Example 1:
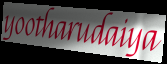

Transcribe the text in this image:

yootharudaiya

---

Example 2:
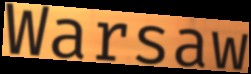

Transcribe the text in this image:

Warsaw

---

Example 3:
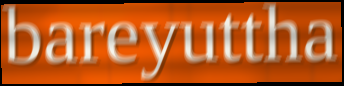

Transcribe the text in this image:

bareyuttha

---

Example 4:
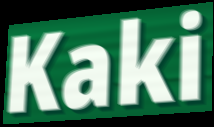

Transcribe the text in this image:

Kaki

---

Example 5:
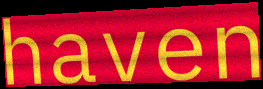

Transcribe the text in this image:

haven